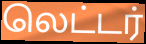
லெட்டர்